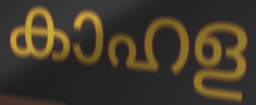
കാഹള